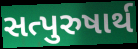
સત્પુરુષાર્થ